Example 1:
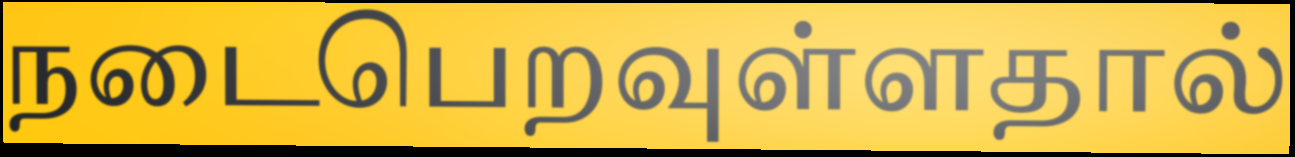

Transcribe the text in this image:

நடைபெறவுள்ளதால்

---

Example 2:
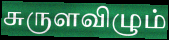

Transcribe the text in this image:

சுருளவிழும்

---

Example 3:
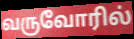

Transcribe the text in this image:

வருவோரில்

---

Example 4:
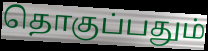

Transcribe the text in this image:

தொகுப்பதும்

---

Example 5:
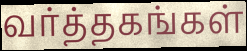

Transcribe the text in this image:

வர்த்தகங்கள்